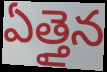
ఏత్తైన